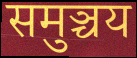
समुञ्चय